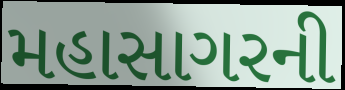
મહાસાગરની